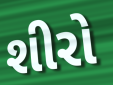
શીરો